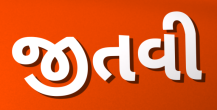
જીતવી